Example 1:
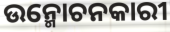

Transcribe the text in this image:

ଉନ୍ମୋଚନକାରୀ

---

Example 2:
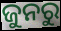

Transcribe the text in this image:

ଜୁନରୁ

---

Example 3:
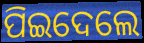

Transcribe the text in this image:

ପିଇଦେଲେ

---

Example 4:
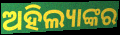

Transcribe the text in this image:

ଅହିଲ୍ୟାଙ୍କର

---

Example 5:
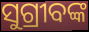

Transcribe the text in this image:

ସୁଗ୍ରୀବଙ୍କ